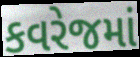
કવરેજમાં